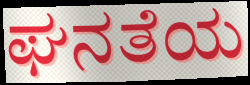
ಘನತೆಯ